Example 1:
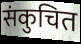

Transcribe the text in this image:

संकुचित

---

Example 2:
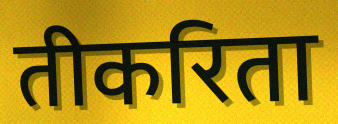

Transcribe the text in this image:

तीकरिता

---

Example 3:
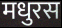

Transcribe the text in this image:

मधुरस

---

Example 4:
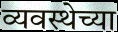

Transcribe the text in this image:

व्यवस्थेच्या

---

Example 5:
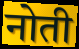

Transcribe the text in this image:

नोती